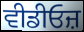
ਵੀਡੀਓਜ਼